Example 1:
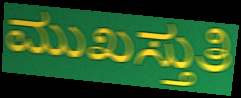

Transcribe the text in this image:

ಮುಖಸ್ತುತಿ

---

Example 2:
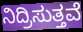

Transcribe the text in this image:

ನಿದ್ರಿಸುತ್ತವೆ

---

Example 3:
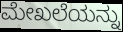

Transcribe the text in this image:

ಮೇಖಲೆಯನ್ನು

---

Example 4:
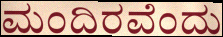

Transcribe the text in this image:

ಮಂದಿರವೆಂದು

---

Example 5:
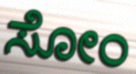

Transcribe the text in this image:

ಸೋಂ